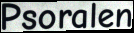
Psoralen